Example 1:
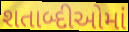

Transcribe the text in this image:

શતાબ્દીઓમાં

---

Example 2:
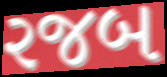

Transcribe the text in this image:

રજબ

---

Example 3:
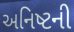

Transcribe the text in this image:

અનિષ્ટની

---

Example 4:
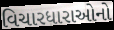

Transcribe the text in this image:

વિચારધારાઓનો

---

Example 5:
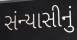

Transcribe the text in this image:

સંન્યાસીનું